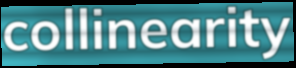
collinearity